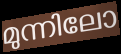
മുന്നിലോ